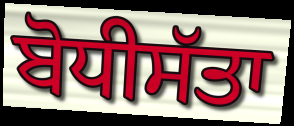
ਬੋਧੀਸੱਤਾ